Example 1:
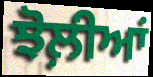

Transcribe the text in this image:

ਝੋਲ਼ੀਆਂ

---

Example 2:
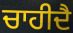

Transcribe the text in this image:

ਚਾਹੀਦੈ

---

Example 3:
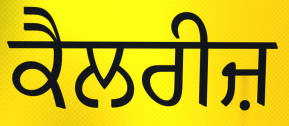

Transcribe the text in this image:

ਕੈਲਰੀਜ਼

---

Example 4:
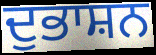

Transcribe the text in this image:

ਦੁਭਾਸ਼ਨ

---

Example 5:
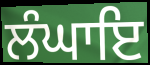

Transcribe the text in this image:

ਲੰਘਾਇ